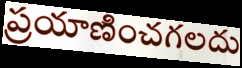
ప్రయాణించగలదు